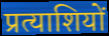
प्रत्‍याशियों